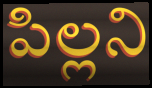
పిల్లని